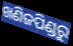
ଖଣିଜପିଣ୍ଡରୁ